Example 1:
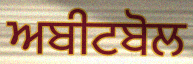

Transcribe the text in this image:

ਅਬੀਟਬੋਲ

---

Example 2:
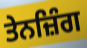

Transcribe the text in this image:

ਤੇਨਜ਼ਿੰਗ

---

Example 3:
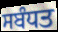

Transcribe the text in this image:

ਸਬੰਧਤ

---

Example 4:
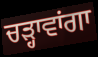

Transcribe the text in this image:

ਚੜ੍ਹਾਵਾਂਗਾ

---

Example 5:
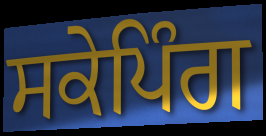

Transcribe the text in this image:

ਸਕੇਪਿੰਗ